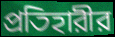
প্রতিহারীর